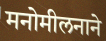
मनोमीलनाने